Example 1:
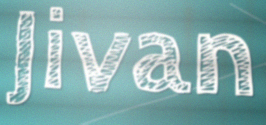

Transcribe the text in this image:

Jivan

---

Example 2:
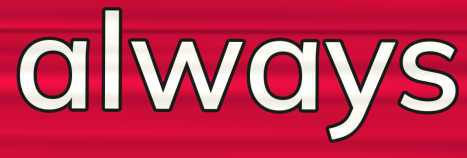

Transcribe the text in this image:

always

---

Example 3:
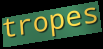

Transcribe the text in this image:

tropes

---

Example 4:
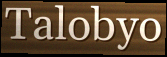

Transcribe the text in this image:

Talobyo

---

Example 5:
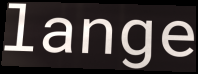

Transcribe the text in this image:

lange